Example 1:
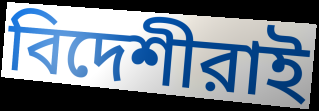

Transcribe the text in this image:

বিদেশীরাই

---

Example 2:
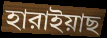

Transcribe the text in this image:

হারাইয়াছ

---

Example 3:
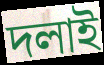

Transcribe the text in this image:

দলাই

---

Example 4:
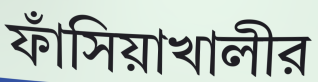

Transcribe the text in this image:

ফাঁসিয়াখালীর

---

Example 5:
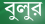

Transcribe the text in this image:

বুলুর